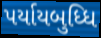
પર્યાયબુધ્ધિ